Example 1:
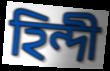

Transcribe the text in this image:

হিন্দী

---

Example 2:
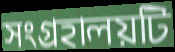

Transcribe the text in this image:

সংগ্রহালয়টি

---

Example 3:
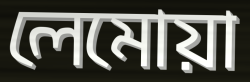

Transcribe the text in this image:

লেমোয়া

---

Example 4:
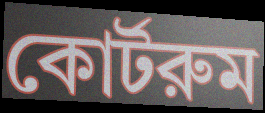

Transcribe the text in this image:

কোর্টরুম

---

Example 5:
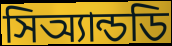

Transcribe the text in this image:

সিঅ্যান্ডডি